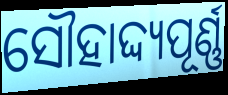
ସୌହାଦ୍ଦ୍ୟପୂର୍ଣ୍ଣ